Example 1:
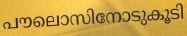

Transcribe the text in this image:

പൗലൊസിനോടുകൂടി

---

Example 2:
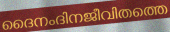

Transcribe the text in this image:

ദൈനംദിനജീവിതത്തെ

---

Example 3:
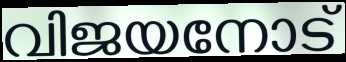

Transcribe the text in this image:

വിജയനോട്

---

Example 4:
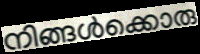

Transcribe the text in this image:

നിങ്ങൾക്കൊരു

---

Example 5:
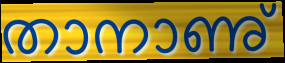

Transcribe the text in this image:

താനാണു്